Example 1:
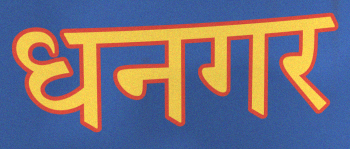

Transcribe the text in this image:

धनगर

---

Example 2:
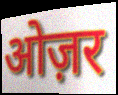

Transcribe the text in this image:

ओज़र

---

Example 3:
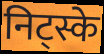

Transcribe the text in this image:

निट्स्के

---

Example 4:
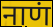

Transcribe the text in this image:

नाणं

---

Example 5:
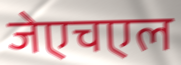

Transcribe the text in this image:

जेएचएल